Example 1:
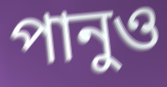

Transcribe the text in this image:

পানুও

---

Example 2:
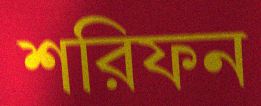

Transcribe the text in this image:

শরিফন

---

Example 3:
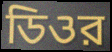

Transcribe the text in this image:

ডিওর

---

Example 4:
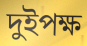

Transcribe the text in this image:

দুইপক্ষ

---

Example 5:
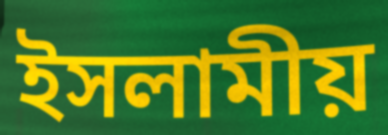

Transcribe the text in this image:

ইসলামীয়